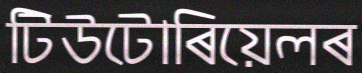
টিউটোৰিয়েলৰ